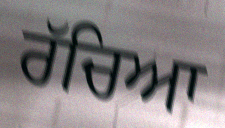
ਰੱਚਿਆ